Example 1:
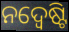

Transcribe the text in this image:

ନଦ୍ୱେଷ୍ଟି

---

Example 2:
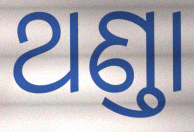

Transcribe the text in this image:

ଥଣ୍ଡା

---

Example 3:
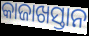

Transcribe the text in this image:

କାଜାଖସ୍ତାନ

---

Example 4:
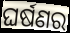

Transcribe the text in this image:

ଘର୍ଷଣର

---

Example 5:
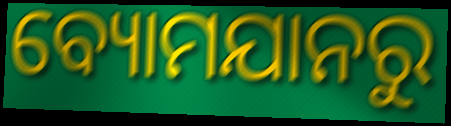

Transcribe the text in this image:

ବ୍ୟୋମଯାନରୁ